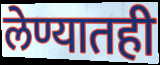
लेण्यातही